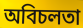
অবিচলতা